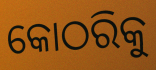
କୋଠରିକୁ